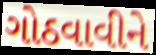
ગોઠવાવીને